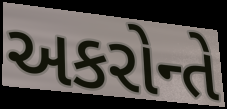
અકરોન્તે